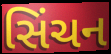
સિંચન